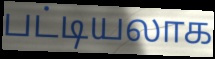
பட்டியலாக